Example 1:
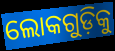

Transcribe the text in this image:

ଲୋକଗୁଡ଼ିକୁ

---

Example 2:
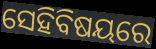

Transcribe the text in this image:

ସେହିବିଷୟରେ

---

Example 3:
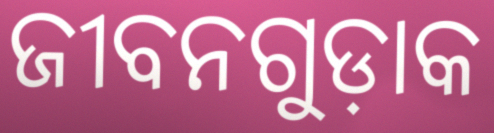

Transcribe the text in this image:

ଜୀବନଗୁଡ଼ାକ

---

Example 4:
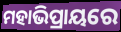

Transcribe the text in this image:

ମହାଭିପ୍ରାୟରେ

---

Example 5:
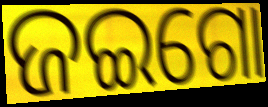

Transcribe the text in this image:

ଜଇଗୋ